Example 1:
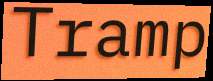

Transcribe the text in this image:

Tramp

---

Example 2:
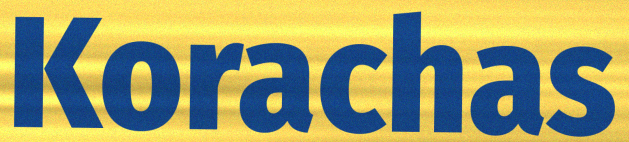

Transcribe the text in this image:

Korachas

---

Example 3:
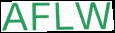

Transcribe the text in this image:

AFLW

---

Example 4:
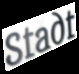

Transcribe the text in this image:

Stadt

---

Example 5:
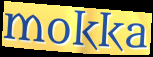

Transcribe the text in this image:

mokka